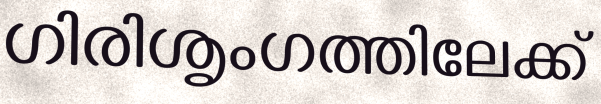
ഗിരിശൃംഗത്തിലേക്ക്